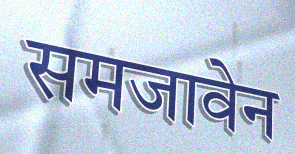
समजावेन